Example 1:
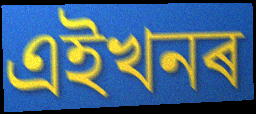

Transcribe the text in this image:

এইখনৰ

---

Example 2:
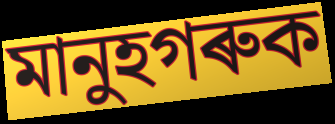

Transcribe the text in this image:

মানুহগৰুক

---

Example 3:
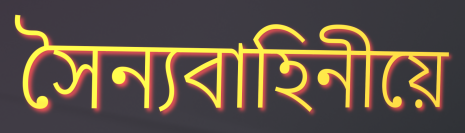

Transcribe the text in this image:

সৈন্যবাহিনীয়ে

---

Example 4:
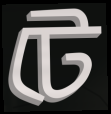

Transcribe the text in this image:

টে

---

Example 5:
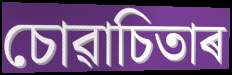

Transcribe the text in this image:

চোৱাচিতাৰ